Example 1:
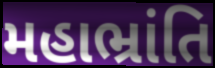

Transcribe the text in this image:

મહાભ્રાંતિ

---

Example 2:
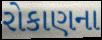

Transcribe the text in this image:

રોકાણના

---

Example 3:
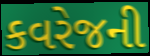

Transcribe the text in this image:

કવરેજની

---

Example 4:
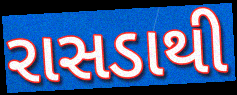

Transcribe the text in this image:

રાસડાથી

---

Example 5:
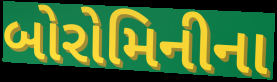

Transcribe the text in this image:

બોરોમિનીના